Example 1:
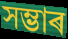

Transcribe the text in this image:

সম্ভাৰ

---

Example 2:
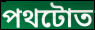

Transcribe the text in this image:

পথটোত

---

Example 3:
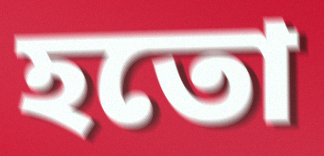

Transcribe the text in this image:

হতো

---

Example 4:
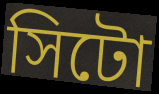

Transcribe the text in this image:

সিটো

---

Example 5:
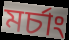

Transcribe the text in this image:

মৰ্চাং